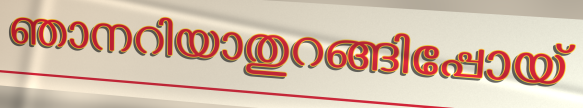
ഞാനറിയാതുറങ്ങിപ്പോയ്